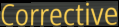
Corrective